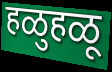
हळुहळू